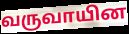
வருவாயின